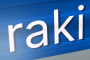
raki